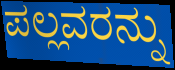
ಪಲ್ಲವರನ್ನು